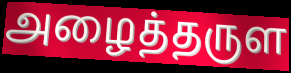
அழைத்தருள